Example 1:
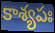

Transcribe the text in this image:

కాశ్యపః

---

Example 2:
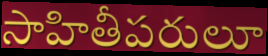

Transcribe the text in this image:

సాహితీపరులూ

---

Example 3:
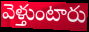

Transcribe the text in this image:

వెళ్తుంటారు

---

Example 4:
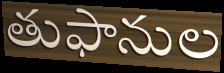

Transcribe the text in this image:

తుఫానుల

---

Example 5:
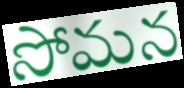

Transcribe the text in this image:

సోమన